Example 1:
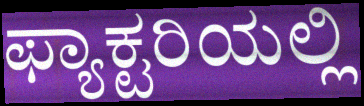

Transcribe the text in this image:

ಫ್ಯಾಕ್ಟರಿಯಲ್ಲಿ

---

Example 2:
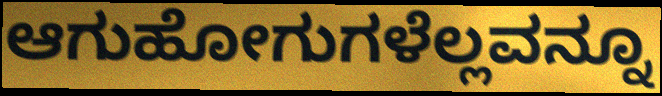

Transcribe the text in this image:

ಆಗುಹೋಗುಗಳೆಲ್ಲವನ್ನೂ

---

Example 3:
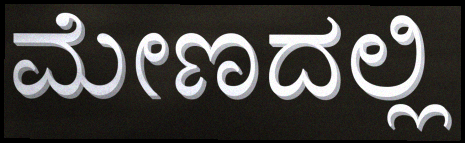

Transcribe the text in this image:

ಮೇಣದಲ್ಲಿ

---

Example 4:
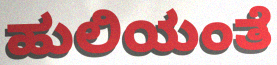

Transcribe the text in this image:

ಹುಲಿಯಂತೆ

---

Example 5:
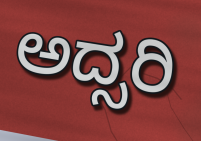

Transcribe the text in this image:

ಅದ್ಸರಿ